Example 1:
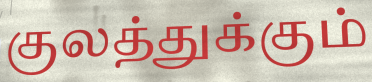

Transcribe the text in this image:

குலத்துக்கும்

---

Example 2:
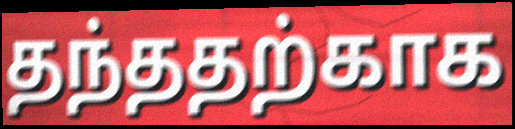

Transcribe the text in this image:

தந்ததற்காக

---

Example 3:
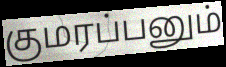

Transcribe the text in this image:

குமரப்பனும்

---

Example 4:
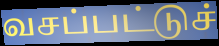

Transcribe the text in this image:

வசப்பட்டுச்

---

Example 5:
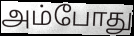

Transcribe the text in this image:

அம்போது